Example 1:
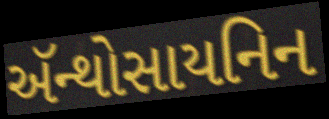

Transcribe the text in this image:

ઍન્થોસાયનિન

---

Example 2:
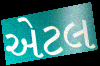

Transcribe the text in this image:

એટલ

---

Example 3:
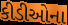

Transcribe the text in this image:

કીડીઓના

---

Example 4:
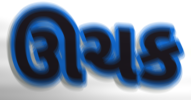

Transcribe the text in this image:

ઊચક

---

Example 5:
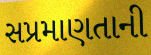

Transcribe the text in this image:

સપ્રમાણતાની